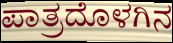
ಪಾತ್ರದೊಳಗಿನ